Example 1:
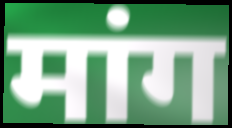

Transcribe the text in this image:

मांग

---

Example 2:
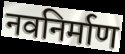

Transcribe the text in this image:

नवनिर्माण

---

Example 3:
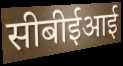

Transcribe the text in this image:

सीबीईआई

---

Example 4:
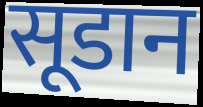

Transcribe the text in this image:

सूडान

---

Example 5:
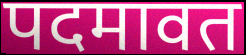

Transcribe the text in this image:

पदमावत